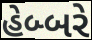
હેબ્બરે